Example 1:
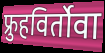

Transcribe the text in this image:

फ्रुहविर्तोवा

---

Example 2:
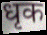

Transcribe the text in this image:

धृक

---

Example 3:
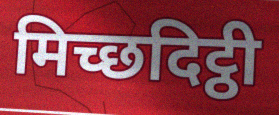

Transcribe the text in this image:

मिच्छदिट्ठी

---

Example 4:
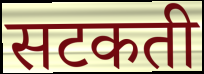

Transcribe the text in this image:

सटकती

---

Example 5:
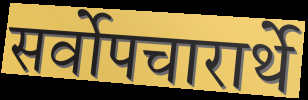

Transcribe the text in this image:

सर्वोपचारार्थे